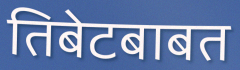
तिबेटबाबत